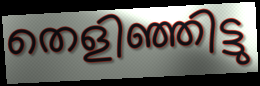
തെളിഞ്ഞിട്ടു